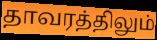
தாவரத்திலும்